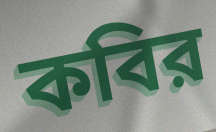
কবির